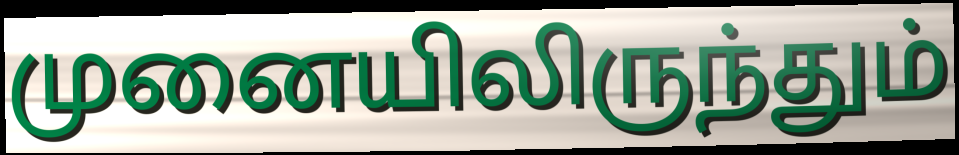
முனையிலிருந்தும்